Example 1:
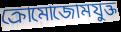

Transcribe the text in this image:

ক্রোমোজোমযুক্ত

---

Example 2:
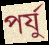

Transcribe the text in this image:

পর্যু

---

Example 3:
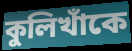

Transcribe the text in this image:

কুলিখাঁকে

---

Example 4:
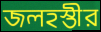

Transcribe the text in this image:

জলহস্তীর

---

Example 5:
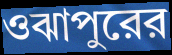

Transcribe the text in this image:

ওঝাপুরের